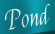
Pond